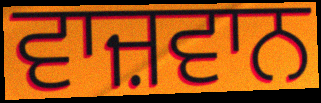
ਵਾਜ਼ਵਾਨ